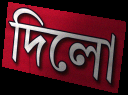
দিলো